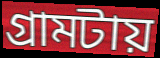
গ্রামটায়